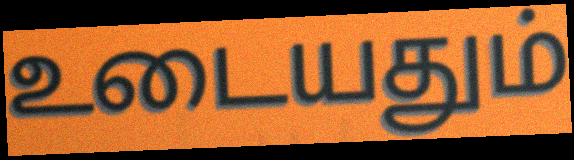
உடையதும்